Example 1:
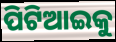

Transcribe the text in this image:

ପିଟିଆଇକୁ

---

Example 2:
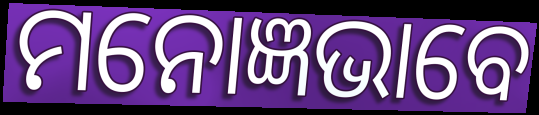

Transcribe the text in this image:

ମନୋଜ୍ଞଭାବେ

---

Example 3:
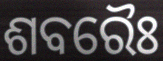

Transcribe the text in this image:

ଶବରୈଃ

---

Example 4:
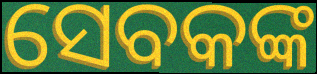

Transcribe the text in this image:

ସେବକଙ୍କ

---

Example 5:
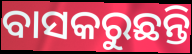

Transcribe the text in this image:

ବାସକରୁଛନ୍ତି